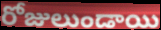
రోజులుండాయి